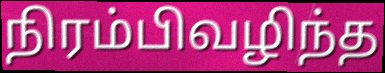
நிரம்பிவழிந்த